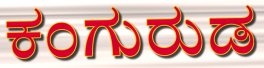
ಕಂಗುರುಡ